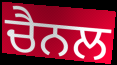
ਚੈਨਲ